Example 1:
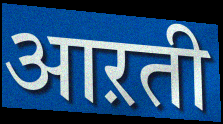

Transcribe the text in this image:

आऱती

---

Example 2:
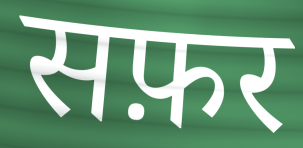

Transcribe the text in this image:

सफ़र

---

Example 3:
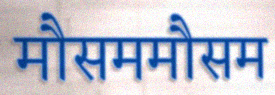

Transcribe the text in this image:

मौसममौसम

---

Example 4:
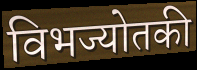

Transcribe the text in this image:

विभज्योतकी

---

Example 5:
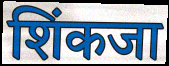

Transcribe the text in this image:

शिंकजा